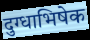
दुग्धाभिषेक